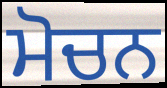
ਮੋਚਨ